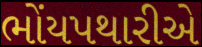
ભોંયપથારીએ